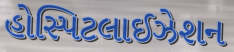
હોસ્પિટલાઈઝેશન